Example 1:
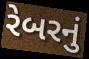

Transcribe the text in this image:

રેબરનું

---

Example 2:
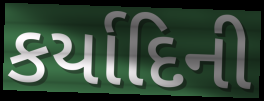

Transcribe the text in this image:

કર્યાદિની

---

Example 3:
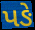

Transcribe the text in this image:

પઙે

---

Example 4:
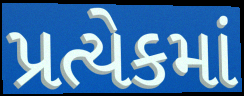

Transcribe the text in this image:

પ્રત્યેકમાં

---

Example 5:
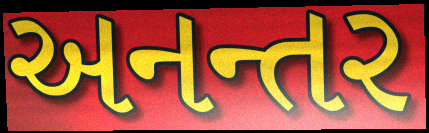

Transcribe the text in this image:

અનન્તર